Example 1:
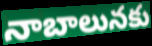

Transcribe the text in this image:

నాబాలునకు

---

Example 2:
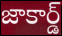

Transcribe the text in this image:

జాకార్డ్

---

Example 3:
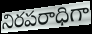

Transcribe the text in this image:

నిరపరాధిగా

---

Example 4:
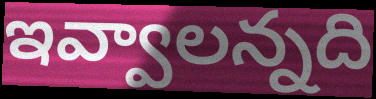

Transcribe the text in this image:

ఇవ్వాలన్నది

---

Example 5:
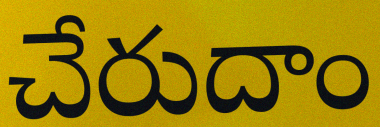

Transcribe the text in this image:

చేరుదాం